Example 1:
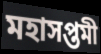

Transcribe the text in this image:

মহাসপ্তমী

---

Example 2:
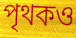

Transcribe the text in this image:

পৃথকও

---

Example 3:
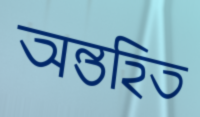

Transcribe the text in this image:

অন্তহিত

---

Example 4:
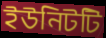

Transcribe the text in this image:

ইউনিটটি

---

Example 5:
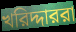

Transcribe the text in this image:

খরিদ্দাররা